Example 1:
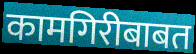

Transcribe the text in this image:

कामगिरीबाबत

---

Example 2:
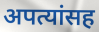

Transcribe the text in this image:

अपत्यांसह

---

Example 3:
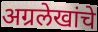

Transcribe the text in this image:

अग्रलेखांचे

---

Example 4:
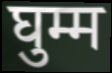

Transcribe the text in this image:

घुम्म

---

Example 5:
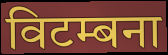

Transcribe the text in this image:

विटम्बना